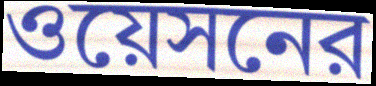
ওয়েসনের